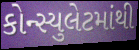
કોન્સ્યુલેટમાંથી